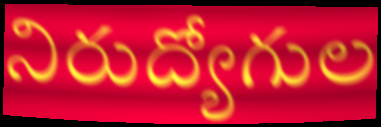
నిరుద్యోగుల